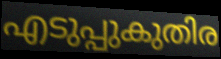
എടുപ്പുകുതിര